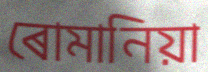
ৰোমানিয়া